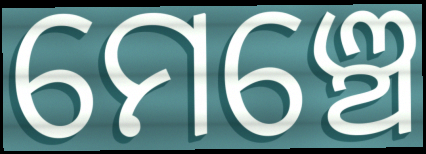
ମେଞ୍ଚେ